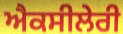
ਐਕਸੀਲੇਰੀ